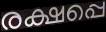
രക്ഷപ്പെ